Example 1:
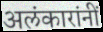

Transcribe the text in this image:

अलंकारांनीं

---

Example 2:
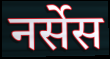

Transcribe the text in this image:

नर्सेस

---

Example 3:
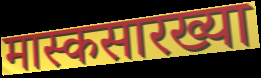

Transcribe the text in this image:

मास्कसारख्या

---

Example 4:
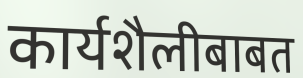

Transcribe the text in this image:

कार्यशैलीबाबत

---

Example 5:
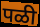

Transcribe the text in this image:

पळी